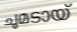
ചുമടായ്